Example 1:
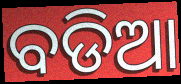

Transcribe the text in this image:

ବଡିଆ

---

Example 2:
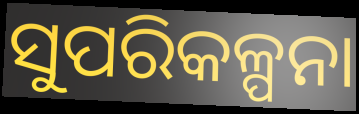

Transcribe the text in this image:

ସୁପରିକଳ୍ପନା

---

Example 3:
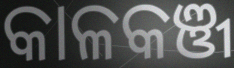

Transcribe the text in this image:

କାଳକଞ୍ଜ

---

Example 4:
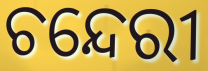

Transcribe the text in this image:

ଚନ୍ଦେରୀ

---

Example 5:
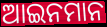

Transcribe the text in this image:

ଆଇନମାନ